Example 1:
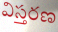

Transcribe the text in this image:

విస్తరణ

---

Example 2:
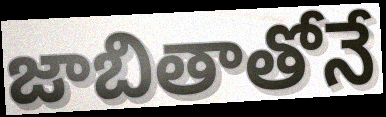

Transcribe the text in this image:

జాబితాతోనే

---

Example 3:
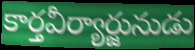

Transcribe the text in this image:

కార్తవీర్యార్జునుడు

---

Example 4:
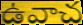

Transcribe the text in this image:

ఉవాచ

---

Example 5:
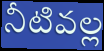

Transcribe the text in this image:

నీటివల్ల